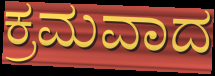
ಕ್ರಮವಾದ